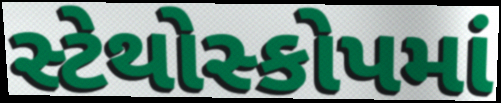
સ્ટેથોસ્કોપમાં